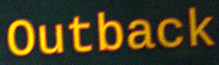
Outback